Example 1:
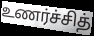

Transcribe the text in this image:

உணர்ச்சித்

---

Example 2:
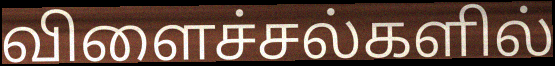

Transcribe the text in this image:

விளைச்சல்களில்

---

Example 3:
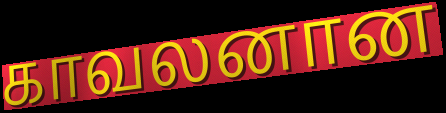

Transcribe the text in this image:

காவலனான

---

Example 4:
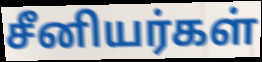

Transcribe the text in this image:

சீனியர்கள்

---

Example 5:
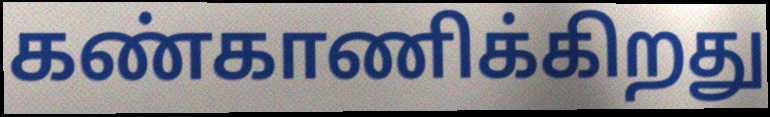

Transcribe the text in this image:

கண்காணிக்கிறது